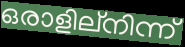
ഒരാളില്നിന്ന്